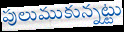
పులుముకున్నట్టు